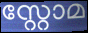
സ്റ്റോമ